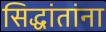
सिद्धांतांना